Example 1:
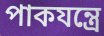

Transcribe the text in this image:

পাকযন্ত্রে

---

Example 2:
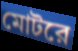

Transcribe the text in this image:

মোটরে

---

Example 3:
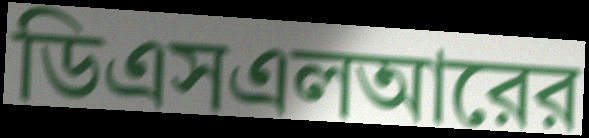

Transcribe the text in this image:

ডিএসএলআরের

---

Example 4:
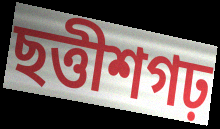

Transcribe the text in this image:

ছত্তীশগঢ়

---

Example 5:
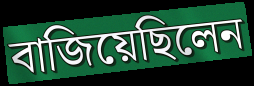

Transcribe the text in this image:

বাজিয়েছিলেন